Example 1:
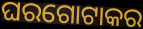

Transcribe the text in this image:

ଘରଗୋଟାକର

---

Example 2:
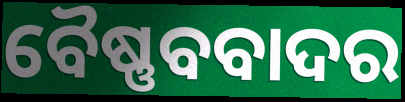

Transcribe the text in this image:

ବୈଷ୍ଣବବାଦର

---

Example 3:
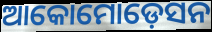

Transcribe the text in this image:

ଆକୋମୋଡ଼େସନ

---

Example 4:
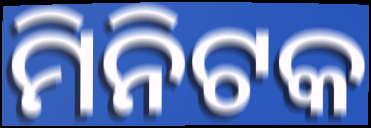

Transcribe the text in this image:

ମିନିଟକ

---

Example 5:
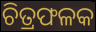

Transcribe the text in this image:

ଚିତ୍ରଫଳକ